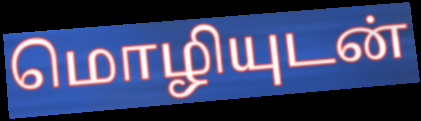
மொழியுடன்